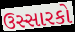
ઉસ્સારકો